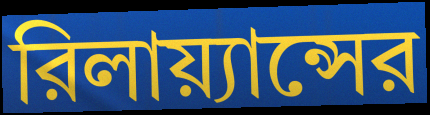
রিলায়্যান্সের